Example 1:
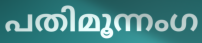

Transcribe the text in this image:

പതിമൂന്നംഗ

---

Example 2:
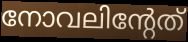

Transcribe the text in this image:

നോവലിന്റേത്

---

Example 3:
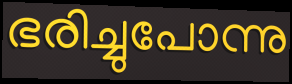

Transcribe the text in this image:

ഭരിച്ചുപോന്നു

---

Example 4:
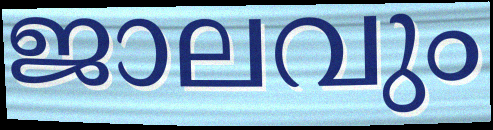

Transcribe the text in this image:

ജാലവും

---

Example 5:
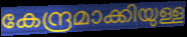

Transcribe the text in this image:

കേന്ദ്രമാക്കിയുള്ള